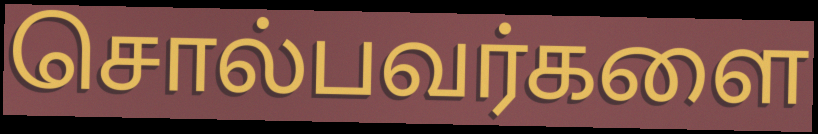
சொல்பவர்களை